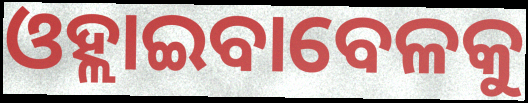
ଓହ୍ଲାଇବାବେଳକୁ